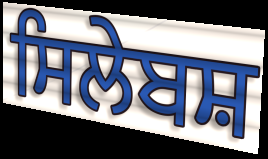
ਸਿਲੇਬਸ਼